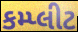
કમ્પ્લીટ